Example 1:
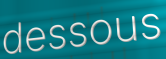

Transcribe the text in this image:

dessous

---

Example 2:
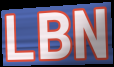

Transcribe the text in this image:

LBN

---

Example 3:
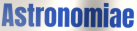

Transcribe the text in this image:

Astronomiae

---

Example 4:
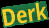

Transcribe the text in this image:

Derk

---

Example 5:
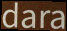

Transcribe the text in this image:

dara